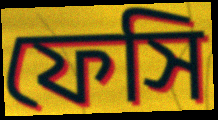
ফেসি